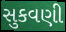
સુકવણી